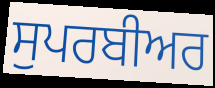
ਸੁਪਰਬੀਅਰ